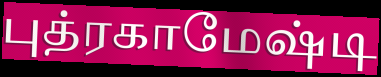
புத்ரகாமேஷ்டி